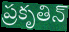
ప్రకృతిన్